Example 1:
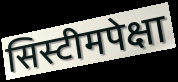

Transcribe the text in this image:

सिस्टीमपेक्षा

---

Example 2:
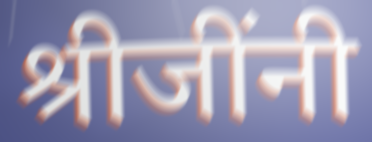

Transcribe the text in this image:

श्रीजींनी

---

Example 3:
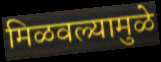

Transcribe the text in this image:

मिळवल्यामुळे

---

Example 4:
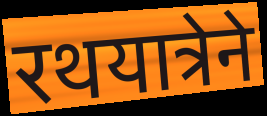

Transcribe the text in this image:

रथयात्रेने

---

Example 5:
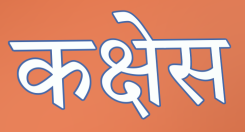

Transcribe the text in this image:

कक्षेस